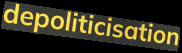
depoliticisation